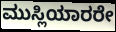
ಮುಸ್ಲಿಯಾರರೇ